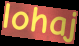
lohaj